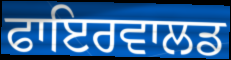
ਫਾਇਰਵਾਲਡ